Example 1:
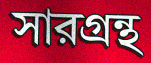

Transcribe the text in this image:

সারগ্রন্থ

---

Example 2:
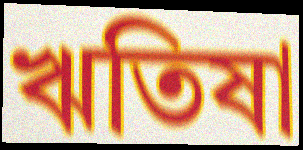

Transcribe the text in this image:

ঋতিষা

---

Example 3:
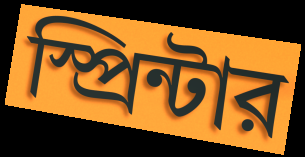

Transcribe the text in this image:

স্প্রিন্টার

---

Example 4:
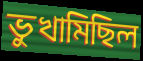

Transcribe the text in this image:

ভুখামিছিল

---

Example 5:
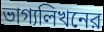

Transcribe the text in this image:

ভাগ্যলিখনের